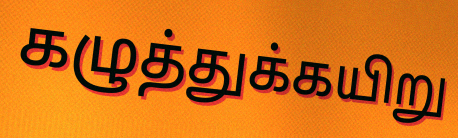
கழுத்துக்கயிறு